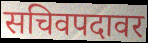
सचिवपदावर